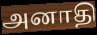
அனாதி